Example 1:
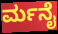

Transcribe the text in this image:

ರ್ಮನೈ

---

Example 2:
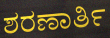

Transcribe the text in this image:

ಶರಣಾರ್ತಿ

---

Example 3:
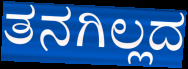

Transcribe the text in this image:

ತನಗಿಲ್ಲದ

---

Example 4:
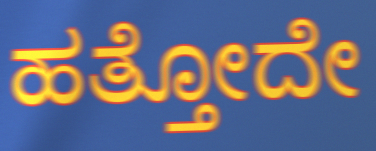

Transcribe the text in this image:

ಹತ್ತೋದೇ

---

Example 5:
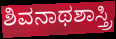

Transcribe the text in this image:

ಶಿವನಾಥಶಾಸ್ತ್ರಿ